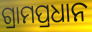
ଗ୍ରାମପ୍ରଧାନ